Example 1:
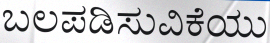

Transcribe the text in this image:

ಬಲಪಡಿಸುವಿಕೆಯು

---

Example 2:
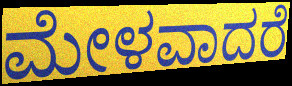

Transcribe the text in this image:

ಮೇಳವಾದರೆ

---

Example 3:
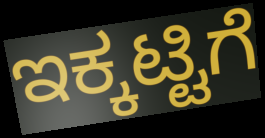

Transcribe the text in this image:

ಇಕ್ಕಟ್ಟಿಗೆ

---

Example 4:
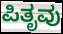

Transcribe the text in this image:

ಪಿತೃವು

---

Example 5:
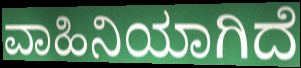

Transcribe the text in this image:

ವಾಹಿನಿಯಾಗಿದೆ